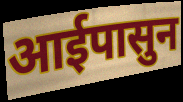
आईपासुन